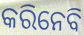
କରିନେବି